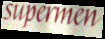
supermen